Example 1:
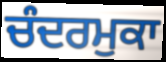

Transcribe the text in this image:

ਚੰਦਰਮੁਕਾ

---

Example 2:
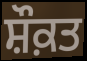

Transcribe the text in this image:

ਸ਼ੌਕ਼ਤ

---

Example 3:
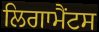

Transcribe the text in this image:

ਲਿਗਾਮੈਂਟਸ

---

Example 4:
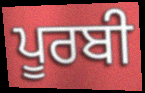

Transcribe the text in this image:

ਪੂਰਬੀ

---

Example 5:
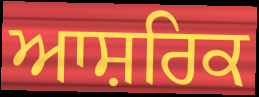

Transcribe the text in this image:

ਆਸ਼ਰਿਕ